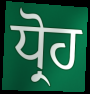
ਧ੍ਰੋਹ